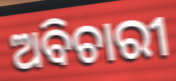
ଅବିଚାରୀ